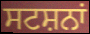
ਸਟਸ਼ਨਾਂ